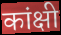
कांक्षी